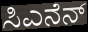
ಸಿಎನೆನ್